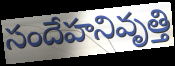
సందేహనివృత్తి